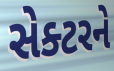
સેક્ટરને